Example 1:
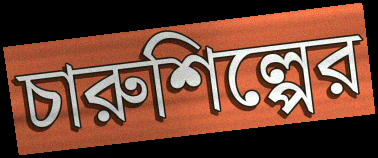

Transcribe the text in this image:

চারুশিল্পের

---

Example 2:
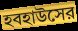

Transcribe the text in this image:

হবহাউসের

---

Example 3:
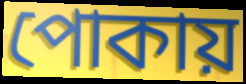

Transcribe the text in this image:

পোকায়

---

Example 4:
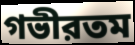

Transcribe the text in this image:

গভীরতম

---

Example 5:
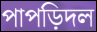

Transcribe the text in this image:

পাপড়িদল